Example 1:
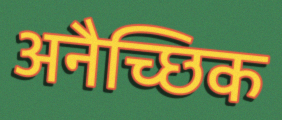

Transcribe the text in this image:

अनैच्छिक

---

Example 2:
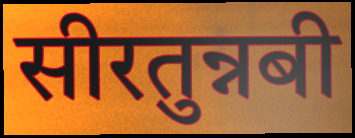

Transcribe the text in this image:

सीरतुन्नबी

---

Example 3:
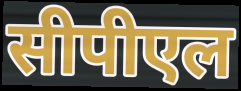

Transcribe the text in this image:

सीपीएल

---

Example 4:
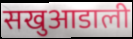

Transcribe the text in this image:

सखुआडाली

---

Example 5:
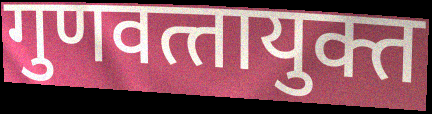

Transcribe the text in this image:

गुणवत्‍तायुक्‍त